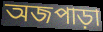
অজপাড়া